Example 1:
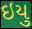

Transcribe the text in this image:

ઇયુ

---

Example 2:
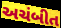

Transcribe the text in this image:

અચંબીત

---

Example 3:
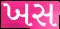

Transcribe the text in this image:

ખસ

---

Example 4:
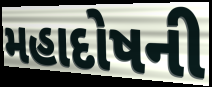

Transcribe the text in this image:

મહાદોષની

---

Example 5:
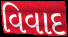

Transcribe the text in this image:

વિવાદ